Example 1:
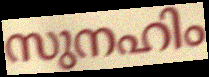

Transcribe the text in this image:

സുനഹിം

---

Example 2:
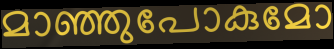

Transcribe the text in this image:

മാഞ്ഞുപോകുമോ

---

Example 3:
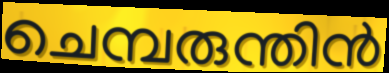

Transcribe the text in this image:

ചെമ്പരുന്തിൻ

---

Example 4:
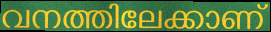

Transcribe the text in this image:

വനത്തിലേക്കാണ്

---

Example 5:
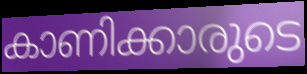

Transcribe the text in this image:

കാണിക്കാരുടെ